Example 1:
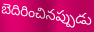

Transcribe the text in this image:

బెదిరించినప్పుడు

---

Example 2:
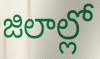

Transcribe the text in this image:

జిలాల్లో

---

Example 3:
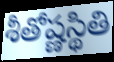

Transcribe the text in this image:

శీతోష్ణస్థితి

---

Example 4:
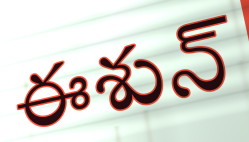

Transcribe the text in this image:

ఈశున్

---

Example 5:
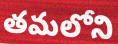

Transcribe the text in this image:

తమలోని